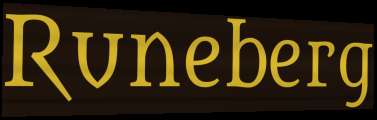
Runeberg